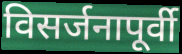
विसर्जनापूर्वी